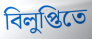
বিলুপ্তিতে